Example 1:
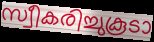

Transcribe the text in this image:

സ്വീകരിച്ചുകൂടാ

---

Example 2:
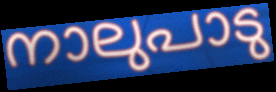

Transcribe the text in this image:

നാലുപാടു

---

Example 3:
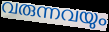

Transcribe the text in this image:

വരുന്നവയും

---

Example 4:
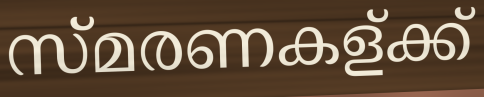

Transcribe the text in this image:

സ്മരണകള്ക്ക്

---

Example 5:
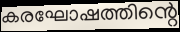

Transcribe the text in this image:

കരഘോഷത്തിന്റെ